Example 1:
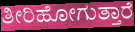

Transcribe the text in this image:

ತೀರಿಹೋಗುತ್ತಾರೆ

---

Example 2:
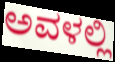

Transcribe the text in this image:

ಅವಳಲ್ಲಿ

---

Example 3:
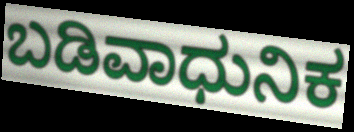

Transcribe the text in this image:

ಬಡಿವಾಧುನಿಕ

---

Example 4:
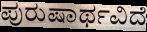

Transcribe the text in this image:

ಪುರುಷಾರ್ಥವಿದೆ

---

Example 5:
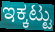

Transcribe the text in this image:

ಇಕ್ಕಟ್ಟು